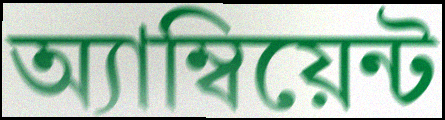
অ্যাম্বিয়েন্ট